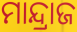
ମାନ୍ଦ୍ରାଜ